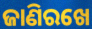
ଜାଣିରଖେ